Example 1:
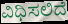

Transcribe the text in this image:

ವಿಧಿಸಲಿದೆ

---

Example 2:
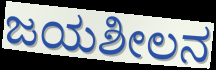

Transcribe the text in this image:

ಜಯಶೀಲನ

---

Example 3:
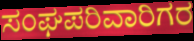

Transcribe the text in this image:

ಸಂಘಪರಿವಾರಿಗರ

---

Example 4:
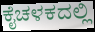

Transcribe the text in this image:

ಕೈಚಳಕದಲ್ಲಿ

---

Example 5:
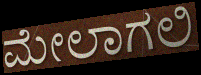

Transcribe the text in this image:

ಮೇಲಾಗಲಿ